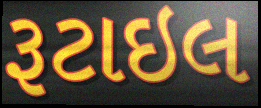
રૂટાઇલ